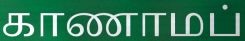
காணாமப்